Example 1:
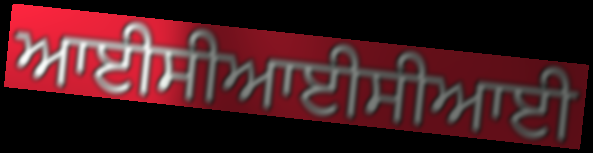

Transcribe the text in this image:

ਆਈਸੀਆਈਸੀਆਈ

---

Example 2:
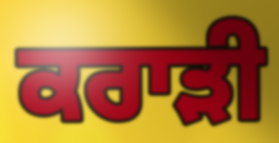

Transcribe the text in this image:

ਕਰਾੜੀ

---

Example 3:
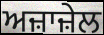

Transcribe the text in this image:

ਅਜ਼ਾਜ਼ੇਲ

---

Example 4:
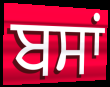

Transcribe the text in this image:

ਬਸਾਂ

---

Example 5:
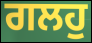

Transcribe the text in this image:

ਗਲਹੁ